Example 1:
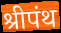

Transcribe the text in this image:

श्रीपंथ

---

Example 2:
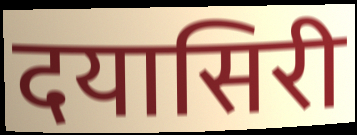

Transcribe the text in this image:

दयासिरी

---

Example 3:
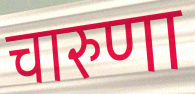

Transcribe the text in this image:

चारुणा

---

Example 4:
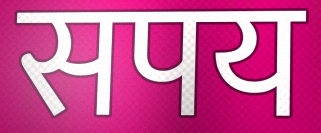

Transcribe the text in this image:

सपय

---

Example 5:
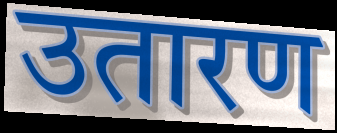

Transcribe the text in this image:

उतारण